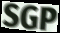
SGP